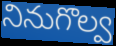
నినుగొల్వ